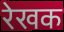
रेखक